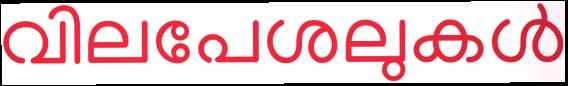
വിലപേശലുകൾ